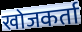
खोजकर्ता